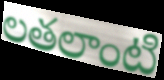
లతలాంటి